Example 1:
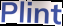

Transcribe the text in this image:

Plint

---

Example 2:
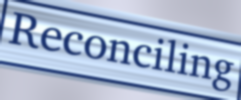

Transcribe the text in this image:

Reconciling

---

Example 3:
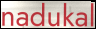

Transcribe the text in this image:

nadukal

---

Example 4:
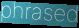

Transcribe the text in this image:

phrased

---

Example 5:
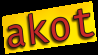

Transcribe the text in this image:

akot